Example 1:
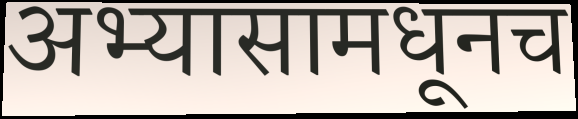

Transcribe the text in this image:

अभ्यासामधूनच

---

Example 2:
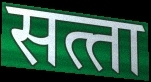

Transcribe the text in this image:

सत्‍ता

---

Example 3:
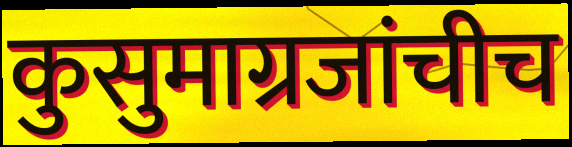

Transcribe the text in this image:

कुसुमाग्रजांचीच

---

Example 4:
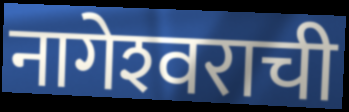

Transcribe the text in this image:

नागेश्‍वराची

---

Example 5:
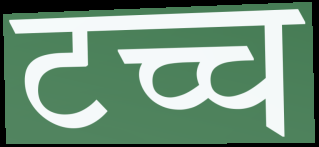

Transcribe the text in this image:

टच्च